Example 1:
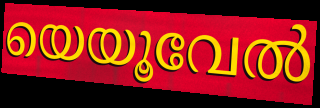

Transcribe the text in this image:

യെയൂവേൽ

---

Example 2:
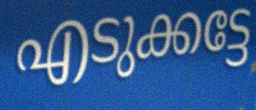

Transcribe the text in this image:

എടുക്കട്ടേ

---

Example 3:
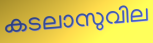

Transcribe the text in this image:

കടലാസുവില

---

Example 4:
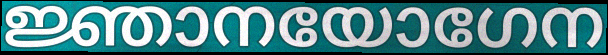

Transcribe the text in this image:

ജ്ഞാനയോഗേന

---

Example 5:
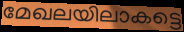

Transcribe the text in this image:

മേഖലയിലാകട്ടെ